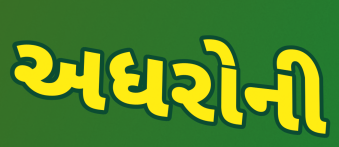
અધરોની